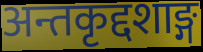
अन्तकृद्दशाङ्ग